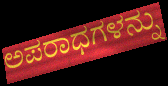
ಅಪರಾಧಗಳನ್ನು